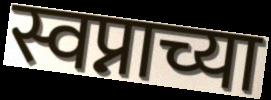
स्वप्नाच्या